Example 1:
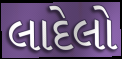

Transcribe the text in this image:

લાદેલો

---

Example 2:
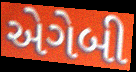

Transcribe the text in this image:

એગેબી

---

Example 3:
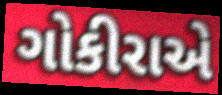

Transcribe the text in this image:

ગોકીરાએ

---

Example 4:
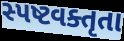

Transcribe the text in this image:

સ્પષ્ટવક્તૃતા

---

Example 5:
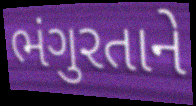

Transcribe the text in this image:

ભંગુરતાને